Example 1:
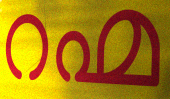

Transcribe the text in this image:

റഹ്മ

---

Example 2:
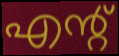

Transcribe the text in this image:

എന്റ്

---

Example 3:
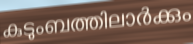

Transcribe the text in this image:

കുടുംബത്തിലാർക്കും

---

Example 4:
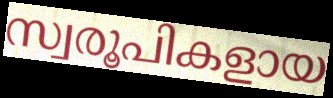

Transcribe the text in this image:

സ്വരൂപികളായ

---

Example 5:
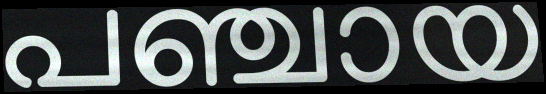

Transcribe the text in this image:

പഞ്ചായ